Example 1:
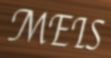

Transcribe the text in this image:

MEIS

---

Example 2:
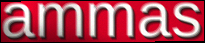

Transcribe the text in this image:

ammas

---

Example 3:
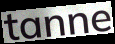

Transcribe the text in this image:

tanne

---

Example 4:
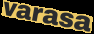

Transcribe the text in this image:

varasa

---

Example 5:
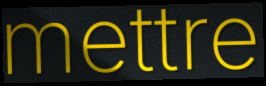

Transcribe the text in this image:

mettre